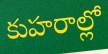
కుహరాల్లో